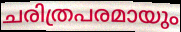
ചരിത്രപരമായും